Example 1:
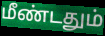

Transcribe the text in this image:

மீண்டதும்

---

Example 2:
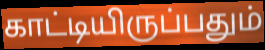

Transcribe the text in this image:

காட்டியிருப்பதும்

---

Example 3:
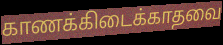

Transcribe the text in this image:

காணக்கிடைக்காதவை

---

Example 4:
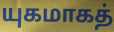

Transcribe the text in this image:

யுகமாகத்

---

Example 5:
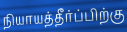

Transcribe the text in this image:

நியாயத்தீர்ப்பிற்கு